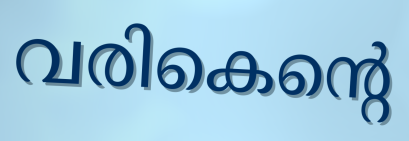
വരികെന്റെ